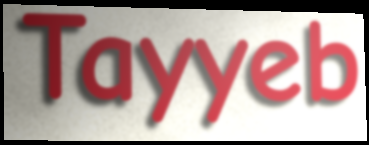
Tayyeb